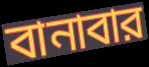
বানাবার